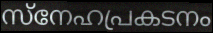
സ്നേഹപ്രകടനം